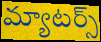
మ్యాటర్స్